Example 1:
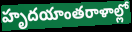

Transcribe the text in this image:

హృదయాంతరాళాల్లో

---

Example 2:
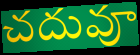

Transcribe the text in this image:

చదువూ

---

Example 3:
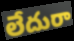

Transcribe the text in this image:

లేదురా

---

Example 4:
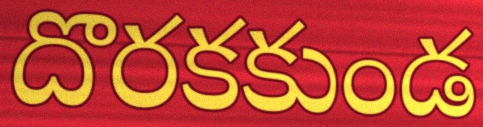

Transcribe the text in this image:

దొరకకుండ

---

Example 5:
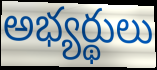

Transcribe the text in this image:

అభ్యర్థులు